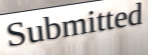
Submitted